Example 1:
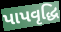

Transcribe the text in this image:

પાપવૃદ્ધિ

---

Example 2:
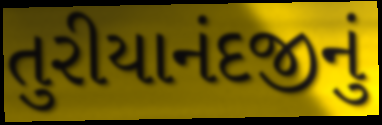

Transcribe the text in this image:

તુરીયાનંદજીનું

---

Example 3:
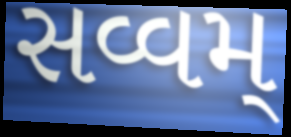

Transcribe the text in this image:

સવ્વમ્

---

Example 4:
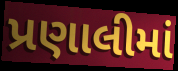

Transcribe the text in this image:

પ્રણાલીમાં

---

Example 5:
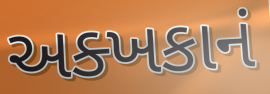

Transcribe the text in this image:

અક્ખકાનં